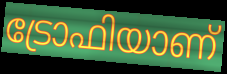
ട്രോഫിയാണ്